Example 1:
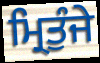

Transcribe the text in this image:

ਮ੍ਰਿਤੁੰਜੇ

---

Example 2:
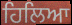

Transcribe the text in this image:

ਹਿਲਿਆ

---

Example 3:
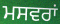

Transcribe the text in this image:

ਮਸਵਰਾਂ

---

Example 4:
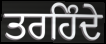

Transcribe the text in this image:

ਤਰਹਿੰਦੇ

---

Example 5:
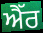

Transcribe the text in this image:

ਐੱਰ